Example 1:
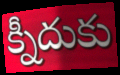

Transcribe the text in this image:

క్నీదుకు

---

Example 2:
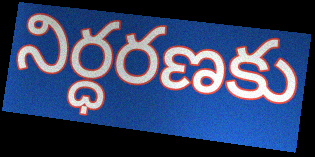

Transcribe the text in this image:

నిర్ధరణకు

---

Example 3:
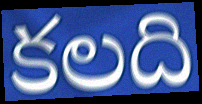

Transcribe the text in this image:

కలది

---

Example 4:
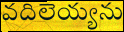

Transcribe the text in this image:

వదిలెయ్యను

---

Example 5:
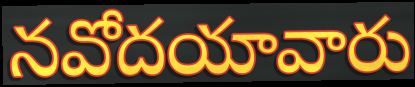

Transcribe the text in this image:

నవోదయావారు